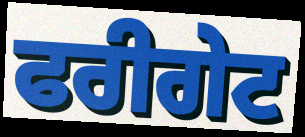
ਫਰੀਗੇਟ